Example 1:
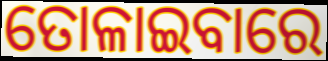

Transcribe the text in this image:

ତୋଳାଇବାରେ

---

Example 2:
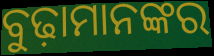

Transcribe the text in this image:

ବୁଢ଼ାମାନଙ୍କର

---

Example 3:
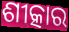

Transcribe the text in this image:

ଶୀତ୍କାର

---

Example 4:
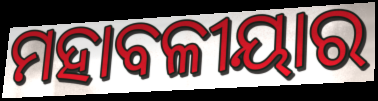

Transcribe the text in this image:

ମହାବଳୀୟାର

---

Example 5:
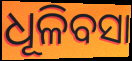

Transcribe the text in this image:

ଧୂଳିବସା